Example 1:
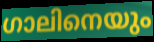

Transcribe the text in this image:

ഗാലിനെയും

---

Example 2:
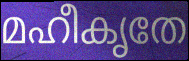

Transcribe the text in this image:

മഹീകൃതേ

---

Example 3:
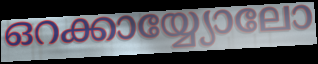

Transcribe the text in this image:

ഒറക്കായ്യ്യോലോ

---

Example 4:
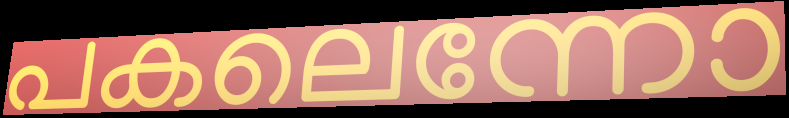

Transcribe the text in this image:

പകലെന്നോ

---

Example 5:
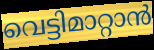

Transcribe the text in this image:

വെട്ടിമാറ്റാൻ